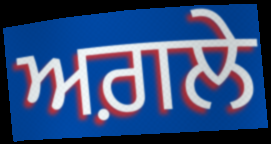
ਅਗ਼ਲੇ